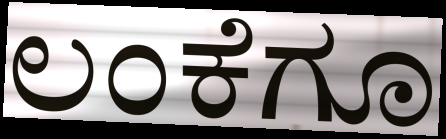
ಲಂಕೆಗೂ